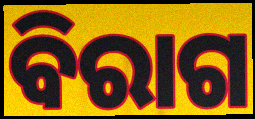
ବିରାଗ